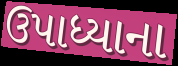
ઉપાધ્યાના